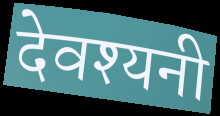
देवश्यनी